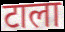
टाला